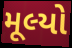
મૂલ્યો